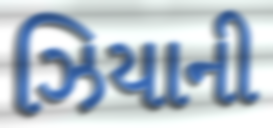
ઝિયાની